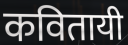
कवितायी